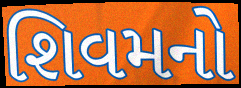
શિવમનો